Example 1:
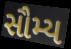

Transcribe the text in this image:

સૌમ્ય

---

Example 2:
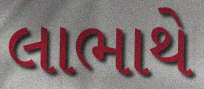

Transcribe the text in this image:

લાભાથે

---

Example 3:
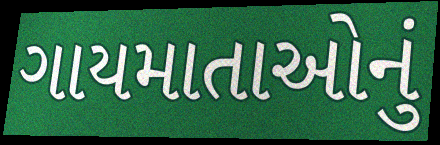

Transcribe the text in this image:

ગાયમાતાઓનું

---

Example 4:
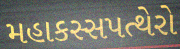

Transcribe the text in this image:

મહાકસ્સપત્થેરો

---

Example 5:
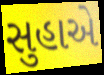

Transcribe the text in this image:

સુહાએ